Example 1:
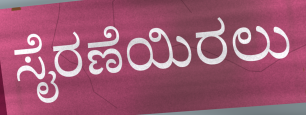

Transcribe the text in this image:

ಸೈರಣೆಯಿರಲು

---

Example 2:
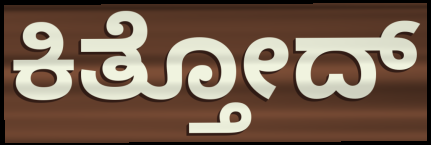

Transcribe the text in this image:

ಕಿತ್ತೋದ್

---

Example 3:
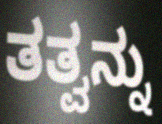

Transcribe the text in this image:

ತತ್ವನ್ನು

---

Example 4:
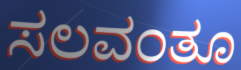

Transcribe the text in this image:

ಸಲವಂತೂ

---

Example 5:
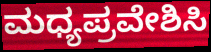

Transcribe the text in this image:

ಮಧ್ಯಪ್ರವೇಶಿಸಿ